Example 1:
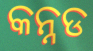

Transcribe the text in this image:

କନ୍ନଡ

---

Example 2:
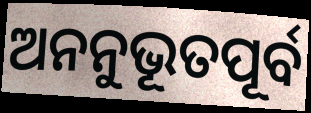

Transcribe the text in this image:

ଅନନୁଭୂତପୂର୍ବ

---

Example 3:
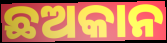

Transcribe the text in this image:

ଛଅକାନ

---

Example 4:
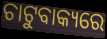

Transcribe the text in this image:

ଚାଟୁବାକ୍ୟରେ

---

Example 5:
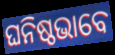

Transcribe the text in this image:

ଘନିଷ୍ଠଭାବେ